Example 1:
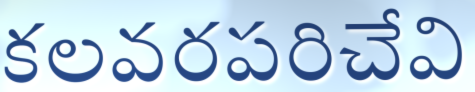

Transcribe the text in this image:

కలవరపరిచేవి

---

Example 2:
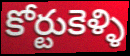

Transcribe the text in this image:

కోర్టుకెళ్ళి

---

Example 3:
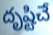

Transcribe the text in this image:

దృష్టిచే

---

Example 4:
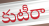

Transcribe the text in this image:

కుటీరా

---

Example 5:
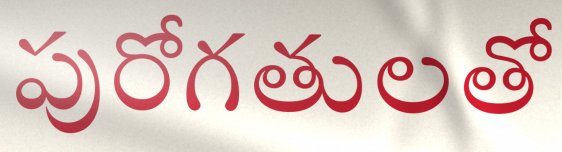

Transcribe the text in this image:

పురోగతులతో